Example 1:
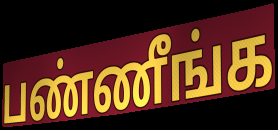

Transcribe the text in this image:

பண்ணீங்க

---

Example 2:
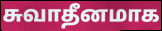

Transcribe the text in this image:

சுவாதீனமாக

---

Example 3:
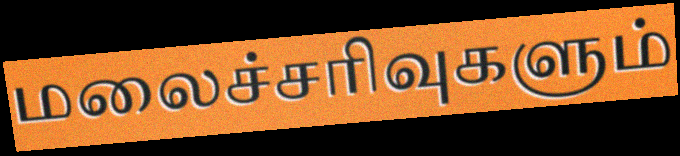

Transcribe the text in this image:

மலைச்சரிவுகளும்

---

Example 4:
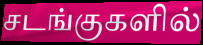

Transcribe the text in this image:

சடங்குகளில்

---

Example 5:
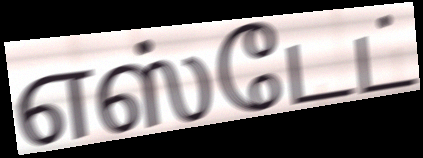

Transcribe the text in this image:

எஸ்டேட்